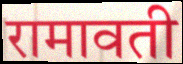
रामावती